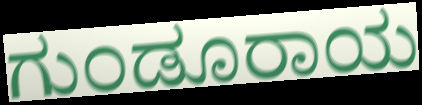
ಗುಂಡೂರಾಯ